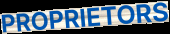
PROPRIETORS